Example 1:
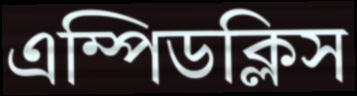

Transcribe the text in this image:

এম্পিডক্লিস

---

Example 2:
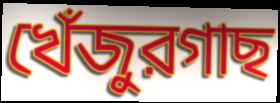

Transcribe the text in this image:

খেঁজুরগাছ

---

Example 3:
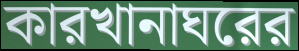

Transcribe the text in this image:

কারখানাঘরের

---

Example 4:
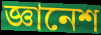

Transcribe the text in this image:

জ্ঞানেশ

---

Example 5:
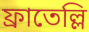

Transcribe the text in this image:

ফ্রাতেল্লি